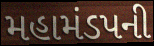
મહામંડપની